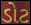
ડોટ